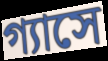
গ্যাসে